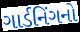
ગાર્ડનિંગનો